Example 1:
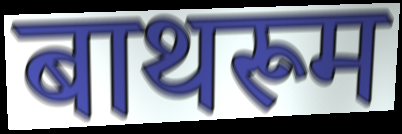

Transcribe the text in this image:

बाथरूम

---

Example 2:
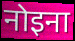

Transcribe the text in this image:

नोइना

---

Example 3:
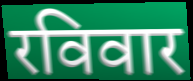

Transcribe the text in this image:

रविवार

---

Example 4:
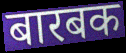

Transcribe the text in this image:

बारबक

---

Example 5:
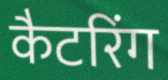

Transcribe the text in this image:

कैटरिंग